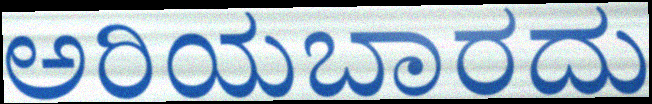
ಅರಿಯಬಾರದು